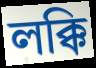
লক্কি